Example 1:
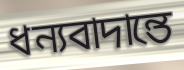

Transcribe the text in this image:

ধন্যবাদান্তে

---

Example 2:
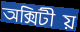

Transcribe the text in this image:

অক্সিটীয়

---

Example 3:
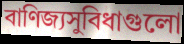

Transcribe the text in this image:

বাণিজ্যসুবিধাগুলো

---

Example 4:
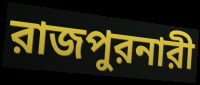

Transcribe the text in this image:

রাজপুরনারী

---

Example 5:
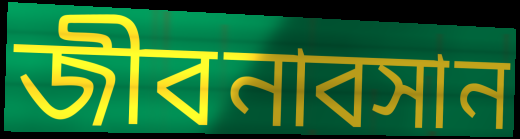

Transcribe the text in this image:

জীবনাবসান